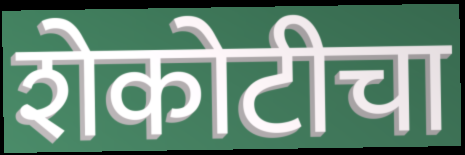
शेकोटीचा